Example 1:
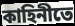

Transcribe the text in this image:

কাহিনীতে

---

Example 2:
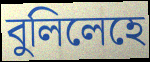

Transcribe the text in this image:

বুলিলেহে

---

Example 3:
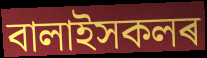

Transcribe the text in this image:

বালাইসকলৰ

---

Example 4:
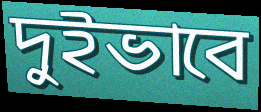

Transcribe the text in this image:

দুইভাবে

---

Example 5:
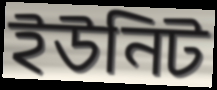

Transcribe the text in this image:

ইউনিট